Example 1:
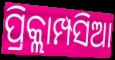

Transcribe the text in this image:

ପ୍ରିକ୍ଲାମ୍ପସିଆ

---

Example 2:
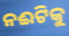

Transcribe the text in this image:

ନଈଟିକୁ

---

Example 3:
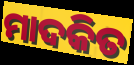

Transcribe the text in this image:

ମାଦକିତ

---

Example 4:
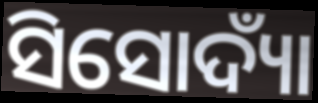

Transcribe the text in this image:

ସିସୋଦ୍ୟାଁ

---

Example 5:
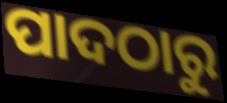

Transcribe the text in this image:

ପାଦଠାରୁ